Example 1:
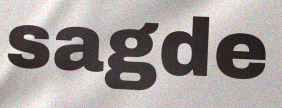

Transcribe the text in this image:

sagde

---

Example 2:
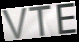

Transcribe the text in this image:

VTE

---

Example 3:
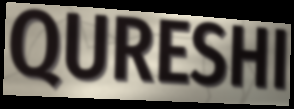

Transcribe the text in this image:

QURESHI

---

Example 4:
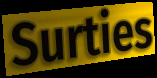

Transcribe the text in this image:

Surties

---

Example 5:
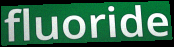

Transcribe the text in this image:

fluoride